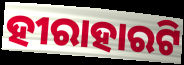
ହୀରାହାରଟି